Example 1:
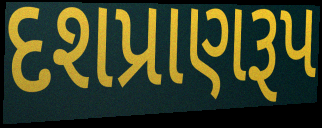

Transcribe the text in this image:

દશપ્રાણરૂપ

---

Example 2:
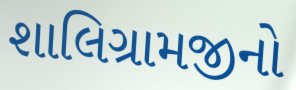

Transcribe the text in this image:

શાલિગ્રામજીનો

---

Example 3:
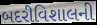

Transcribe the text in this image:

બદરીવિશાલની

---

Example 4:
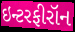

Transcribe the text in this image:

ઇન્ટરફીરૉન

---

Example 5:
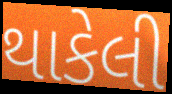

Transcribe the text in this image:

થાકેલી